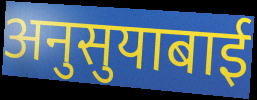
अनुसुयाबाई